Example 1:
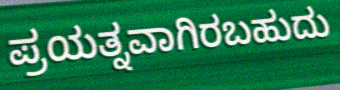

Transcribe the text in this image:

ಪ್ರಯತ್ನವಾಗಿರಬಹುದು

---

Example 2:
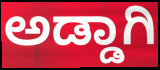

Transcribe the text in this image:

ಅಡ್ಡಾಗಿ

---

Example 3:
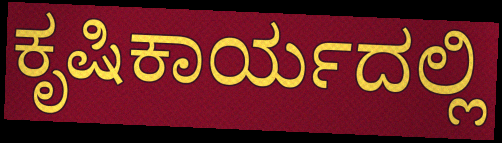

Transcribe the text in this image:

ಕೃಷಿಕಾರ್ಯದಲ್ಲಿ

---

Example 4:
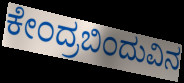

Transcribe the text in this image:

ಕೇಂದ್ರಬಿಂದುವಿನ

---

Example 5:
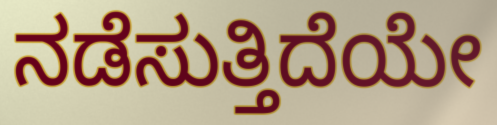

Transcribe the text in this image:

ನಡೆಸುತ್ತಿದೆಯೇ